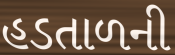
હડતાળની